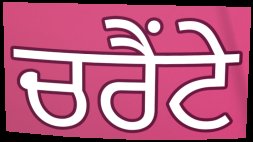
ਚਰੈਂਟੇ